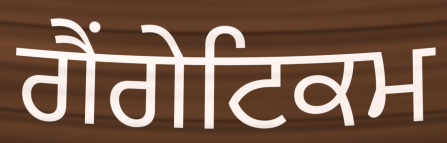
ਗੈਂਗੇਟਿਕਮ